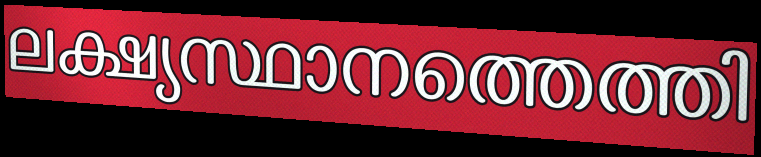
ലക്ഷ്യസ്ഥാനത്തെത്തി